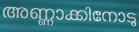
അണ്ണാക്കിനോടു